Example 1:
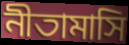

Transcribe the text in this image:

নীতামাসি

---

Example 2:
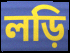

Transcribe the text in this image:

লড়ি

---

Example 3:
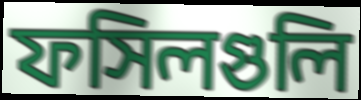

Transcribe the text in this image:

ফসিলগুলি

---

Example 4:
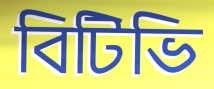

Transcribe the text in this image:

বিটিভি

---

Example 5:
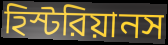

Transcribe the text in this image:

হিস্টরিয়ানস